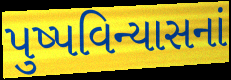
પુષ્પવિન્યાસનાં